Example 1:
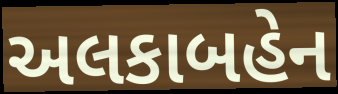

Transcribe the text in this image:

અલકાબહેન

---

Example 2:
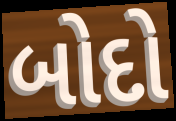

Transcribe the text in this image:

બોદો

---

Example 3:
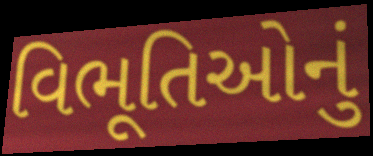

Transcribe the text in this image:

વિભૂતિઓનું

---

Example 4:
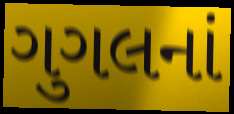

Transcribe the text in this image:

ગુગલનાં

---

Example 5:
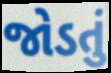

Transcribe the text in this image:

જોડતું